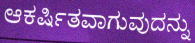
ಆಕರ್ಷಿತವಾಗುವುದನ್ನು